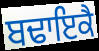
ਬਢਾਇਕੈ